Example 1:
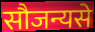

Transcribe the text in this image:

सौजन्यसे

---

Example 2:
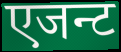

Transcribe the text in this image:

एजन्ट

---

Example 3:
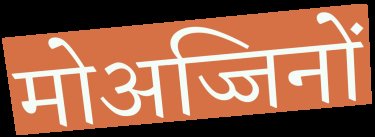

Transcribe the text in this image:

मोअज्जिनों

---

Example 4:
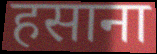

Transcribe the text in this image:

हसाना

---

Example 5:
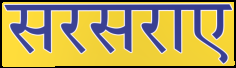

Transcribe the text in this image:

सरसराए